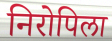
निरोपिला